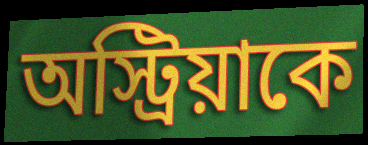
অস্ট্রিয়াকে